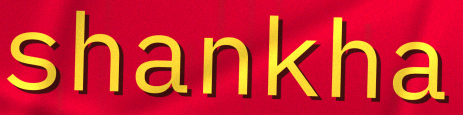
shankha